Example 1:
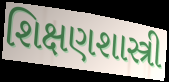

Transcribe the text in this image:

શિક્ષણશાસ્ત્રી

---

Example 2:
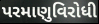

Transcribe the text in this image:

પરમાણુવિરોધી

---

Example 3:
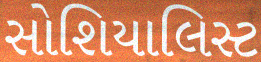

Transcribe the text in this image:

સોશિયાલિસ્ટ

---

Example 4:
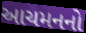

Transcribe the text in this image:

આચમનનો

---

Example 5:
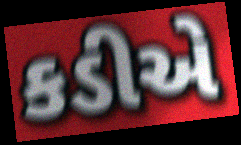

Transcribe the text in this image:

કડીએ